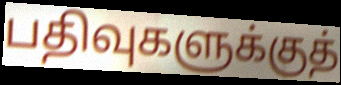
பதிவுகளுக்குத்